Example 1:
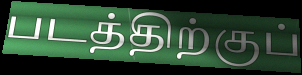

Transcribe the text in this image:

படத்திற்குப்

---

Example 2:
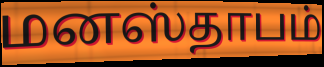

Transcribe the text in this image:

மனஸ்தாபம்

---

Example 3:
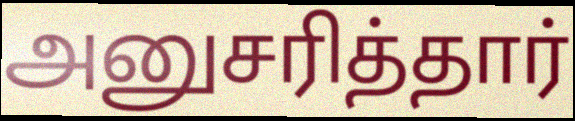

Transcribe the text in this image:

அனுசரித்தார்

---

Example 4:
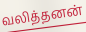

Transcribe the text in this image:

வலித்தனன்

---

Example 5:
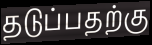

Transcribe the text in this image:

தடுப்பதற்கு